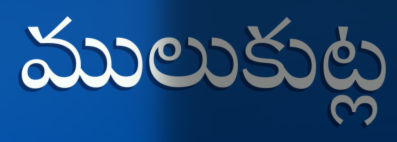
ములుకుట్ల